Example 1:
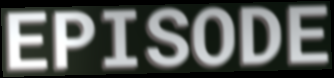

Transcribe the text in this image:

EPISODE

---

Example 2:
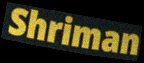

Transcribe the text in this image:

Shriman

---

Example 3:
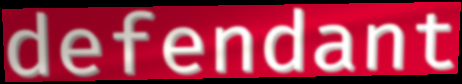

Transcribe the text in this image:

defendant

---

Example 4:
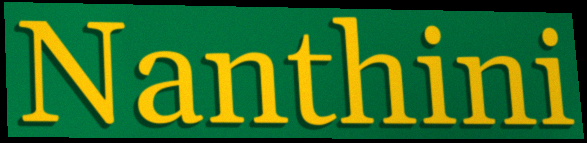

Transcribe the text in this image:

Nanthini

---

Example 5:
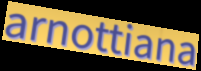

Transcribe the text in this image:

arnottiana